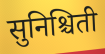
सुनिश्चिती